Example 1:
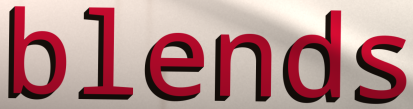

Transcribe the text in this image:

blends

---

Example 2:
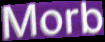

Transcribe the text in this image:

Morb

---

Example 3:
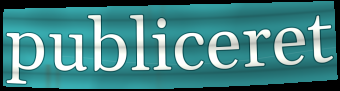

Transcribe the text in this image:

publiceret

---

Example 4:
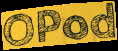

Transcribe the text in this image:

OPod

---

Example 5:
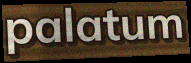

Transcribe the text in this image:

palatum